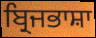
ਬ੍ਰਿਜਭਾਸ਼ਾ